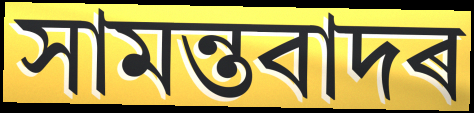
সামন্তবাদৰ